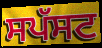
ਸਪੱਸਟ